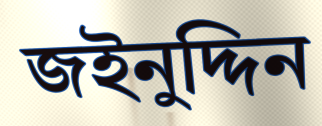
জইনুদ্দিন